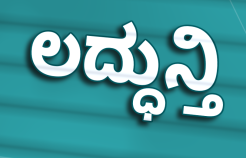
ಲದ್ಧುನ್ತಿ